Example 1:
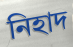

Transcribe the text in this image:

নিহাদ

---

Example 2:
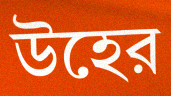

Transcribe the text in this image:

উহের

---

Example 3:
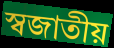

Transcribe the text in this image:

স্বজাতীয়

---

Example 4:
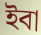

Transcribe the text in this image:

ইবা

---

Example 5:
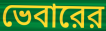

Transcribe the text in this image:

ভেবারের